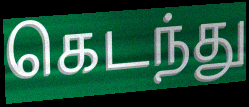
கெடந்து